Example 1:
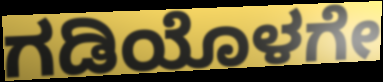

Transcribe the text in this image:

ಗಡಿಯೊಳಗೇ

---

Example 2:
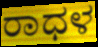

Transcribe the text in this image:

ರಾಧಳ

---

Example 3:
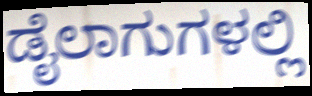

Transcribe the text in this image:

ಡೈಲಾಗುಗಳಲ್ಲಿ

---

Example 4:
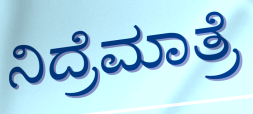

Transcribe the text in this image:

ನಿದ್ರೆಮಾತ್ರೆ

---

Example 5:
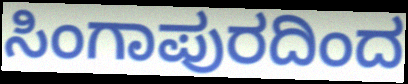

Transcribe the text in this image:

ಸಿಂಗಾಪುರದಿಂದ